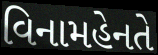
વિનામહેનતે